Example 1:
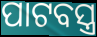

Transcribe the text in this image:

ପାଟବସ୍ତ୍ର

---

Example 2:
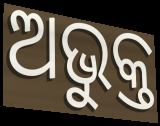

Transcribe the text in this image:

ଅଭୁକ୍ତ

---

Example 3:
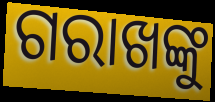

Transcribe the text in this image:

ଗରାଖଙ୍କୁ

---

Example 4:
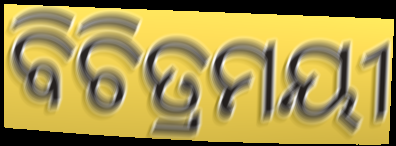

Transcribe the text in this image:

ବିଚିତ୍ରମୟୀ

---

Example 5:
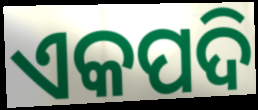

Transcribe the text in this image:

ଏକପଦି